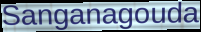
Sanganagouda